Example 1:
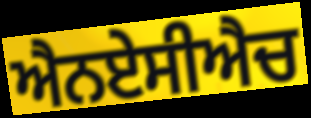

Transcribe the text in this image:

ਐਨਏਸੀਐਚ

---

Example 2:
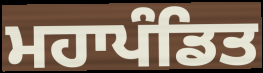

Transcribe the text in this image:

ਮਹਾਪੰਡਿਤ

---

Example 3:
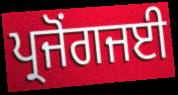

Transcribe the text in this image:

ਪ੍ਰਜੋਂਗਜਈ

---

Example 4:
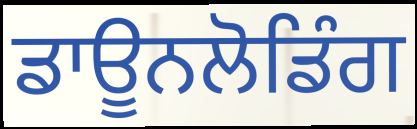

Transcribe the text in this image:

ਡਾਊਨਲੋਡਿੰਗ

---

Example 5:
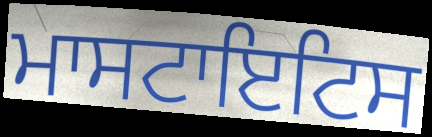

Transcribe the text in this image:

ਮਾਸਟਾਇਟਿਸ